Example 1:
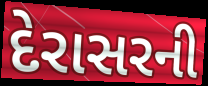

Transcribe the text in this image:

દેરાસરની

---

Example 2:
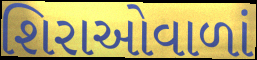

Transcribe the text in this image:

શિરાઓવાળાં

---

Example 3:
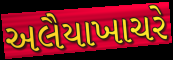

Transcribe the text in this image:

અલૈયાખાચરે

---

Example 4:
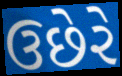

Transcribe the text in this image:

ઉછેરે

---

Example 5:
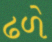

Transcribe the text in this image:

ઢળે